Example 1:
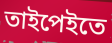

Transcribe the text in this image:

তাইপেইতে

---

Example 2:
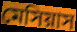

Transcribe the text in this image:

মেসিয়াস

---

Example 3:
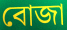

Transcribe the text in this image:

বোজা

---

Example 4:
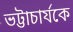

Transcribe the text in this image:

ভট্টাচার্যকে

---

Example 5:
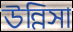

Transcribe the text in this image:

উন্নিসা